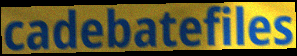
cadebatefiles